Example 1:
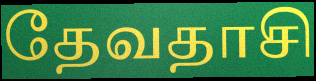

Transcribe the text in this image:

தேவதாசி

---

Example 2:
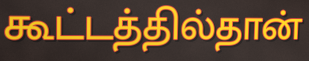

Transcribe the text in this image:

கூட்டத்தில்தான்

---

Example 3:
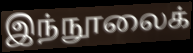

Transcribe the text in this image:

இந்நூலைக்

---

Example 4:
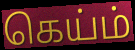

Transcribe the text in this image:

கெய்ம்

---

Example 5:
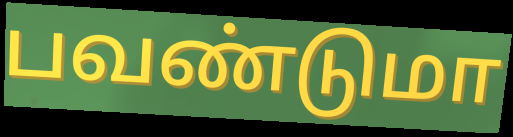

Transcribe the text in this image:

பவண்டுமா